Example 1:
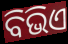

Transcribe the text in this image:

ବିଭିଏ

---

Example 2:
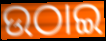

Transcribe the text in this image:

ଉଠାଇ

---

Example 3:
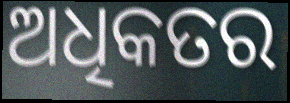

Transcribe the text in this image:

ଅଧିକତର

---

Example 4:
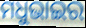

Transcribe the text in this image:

ମଧୁଭାଇର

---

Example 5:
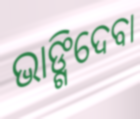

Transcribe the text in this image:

ଭାଙ୍ଗିଦେବା